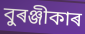
বুৰঞ্জীকাৰ